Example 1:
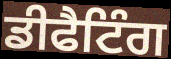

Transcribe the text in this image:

ਡੀਫੈਟਿੰਗ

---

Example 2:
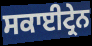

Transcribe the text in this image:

ਸਕਾਈਟ੍ਰੇਨ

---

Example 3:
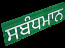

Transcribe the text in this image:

ਸਬੰਧਮਾਨ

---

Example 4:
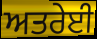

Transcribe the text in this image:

ਅਤਰੇਈ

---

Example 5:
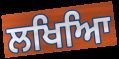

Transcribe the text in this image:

ਲਖਿਆਿ